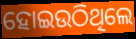
ହୋଇଉଠିଥିଲେ